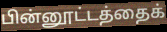
பின்னூட்டத்தைக்